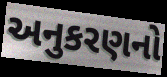
અનુકરણનો